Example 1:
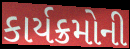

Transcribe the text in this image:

કાર્યક્રમોની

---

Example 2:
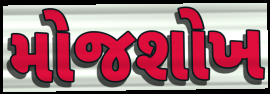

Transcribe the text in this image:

મોજશોખ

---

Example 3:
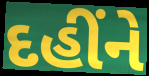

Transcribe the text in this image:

દહીંને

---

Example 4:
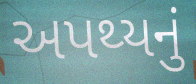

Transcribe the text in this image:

અપથ્યનું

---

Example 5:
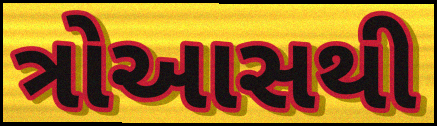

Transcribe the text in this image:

ત્રોઆસથી